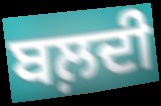
ਬਲ਼ਦੀ